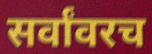
सर्वांवरच